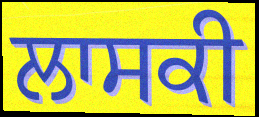
ਲਾਸਕੀ